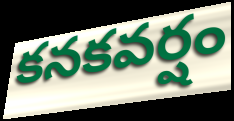
కనకవర్షం